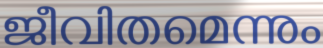
ജീവിതമെന്നും